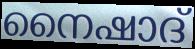
നൈഷാദ്